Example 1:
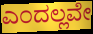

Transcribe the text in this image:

ಎಂದಲ್ಲವೇ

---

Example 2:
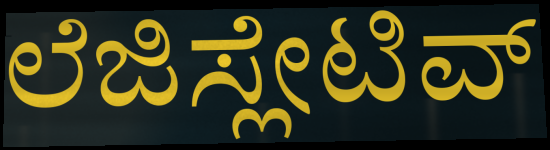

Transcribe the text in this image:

ಲೆಜಿಸ್ಲೇಟಿವ್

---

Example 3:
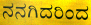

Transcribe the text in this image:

ನನಗಿದರಿಂದ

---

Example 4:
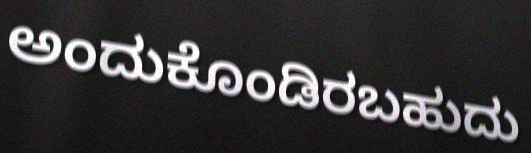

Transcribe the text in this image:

ಅಂದುಕೊಂಡಿರಬಹುದು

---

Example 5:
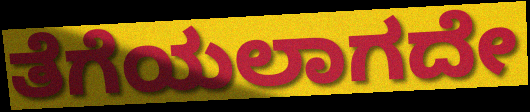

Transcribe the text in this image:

ತೆಗೆಯಲಾಗದೇ